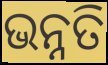
ଭନ୍ନତି